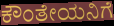
ಕೌಂತೇಯನಿಗೆ